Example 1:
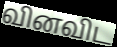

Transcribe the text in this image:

வினவிட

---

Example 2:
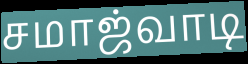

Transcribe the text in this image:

சமாஜ்வாடி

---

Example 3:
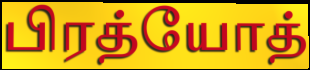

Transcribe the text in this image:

பிரத்யோத்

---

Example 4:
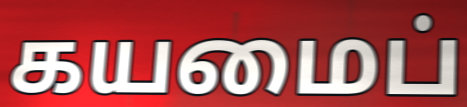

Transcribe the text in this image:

கயமைப்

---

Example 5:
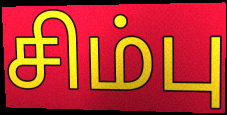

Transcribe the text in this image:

சிம்பு